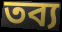
তব্য